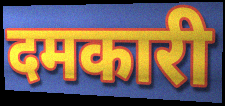
दमकारी